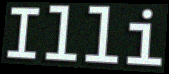
Illi